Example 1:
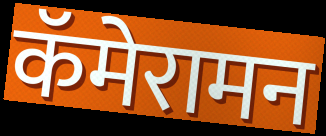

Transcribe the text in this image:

कॅमेरामन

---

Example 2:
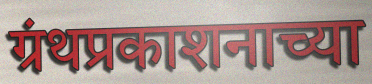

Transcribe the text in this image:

ग्रंथप्रकाशनाच्या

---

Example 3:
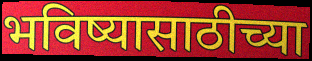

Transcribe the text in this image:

भविष्यासाठीच्या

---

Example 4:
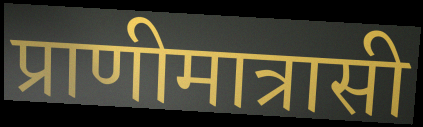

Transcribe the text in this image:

प्राणीमात्रासी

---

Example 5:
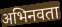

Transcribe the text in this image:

अभिनवता